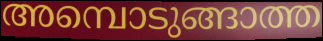
അമ്പൊടുങ്ങാത്ത